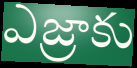
ఎజ్రాకు